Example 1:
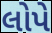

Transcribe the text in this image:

લોપે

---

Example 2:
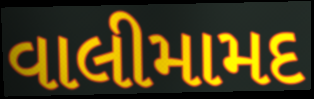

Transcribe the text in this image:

વાલીમામદ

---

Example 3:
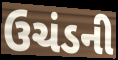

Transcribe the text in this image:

ઉચંડની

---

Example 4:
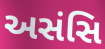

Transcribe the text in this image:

અસંસિ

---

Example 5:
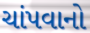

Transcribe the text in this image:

ચાંપવાનો